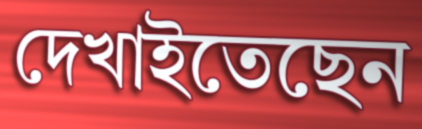
দেখাইতেছেন